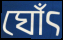
ঘোঁৎ